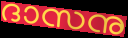
ദാസനു